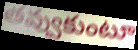
తవ్వుకుంటూ